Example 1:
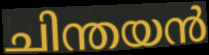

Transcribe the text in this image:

ചിന്തയൻ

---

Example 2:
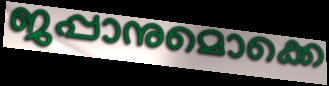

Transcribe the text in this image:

ജപ്പാനുമൊക്കെ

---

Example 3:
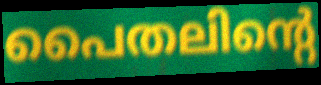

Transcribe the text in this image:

പൈതലിന്റെ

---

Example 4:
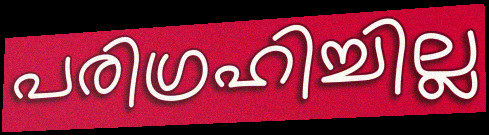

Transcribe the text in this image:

പരിഗ്രഹിച്ചില്ല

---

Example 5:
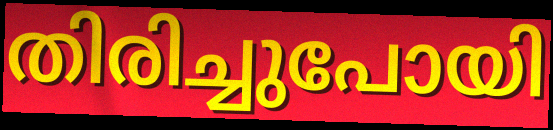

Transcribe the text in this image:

തിരിച്ചുപോയി